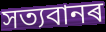
সত্যবানৰ